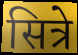
सित्रे